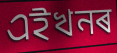
এইখনৰ